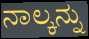
ನಾಲ್ಕನ್ನು